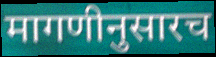
मागणीनुसारच